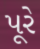
પૂરે